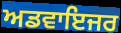
ਅਡਵਾਇਜਰ